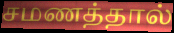
சமணத்தால்